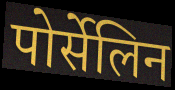
पोर्सेलिन